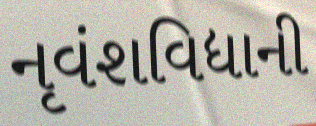
નૃવંશવિદ્યાની